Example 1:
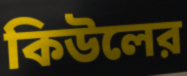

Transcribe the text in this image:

কিউলের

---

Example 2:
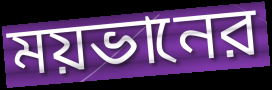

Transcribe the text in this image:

ময়ভানের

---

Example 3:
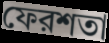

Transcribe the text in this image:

ফেরশতা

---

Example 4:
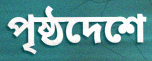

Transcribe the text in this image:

পৃষ্ঠদেশে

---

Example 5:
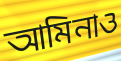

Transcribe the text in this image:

আমিনাও